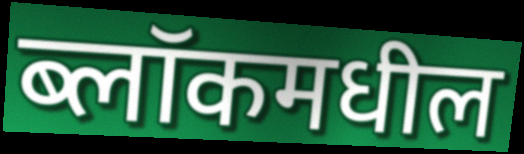
ब्लॉकमधील